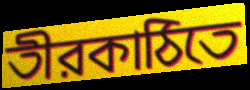
তীরকাঠিতে